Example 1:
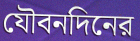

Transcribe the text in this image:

যৌবনদিনের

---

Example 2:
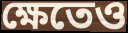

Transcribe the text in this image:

ক্ষেতেও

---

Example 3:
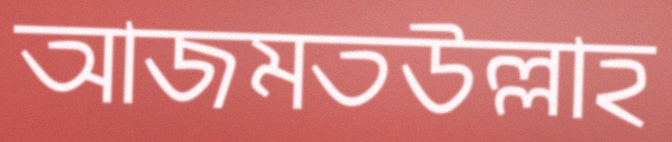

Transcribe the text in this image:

আজমতউল্লাহ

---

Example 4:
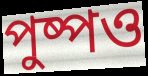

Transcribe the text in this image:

পুষ্পও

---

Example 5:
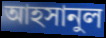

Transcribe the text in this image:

আহসানুল